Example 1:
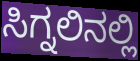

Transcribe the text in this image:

ಸಿಗ್ನಲಿನಲ್ಲಿ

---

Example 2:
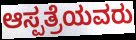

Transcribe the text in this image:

ಆಸ್ಪತ್ರೆಯವರು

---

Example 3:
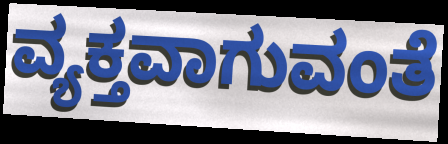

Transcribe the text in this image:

ವ್ಯಕ್ತವಾಗುವಂತೆ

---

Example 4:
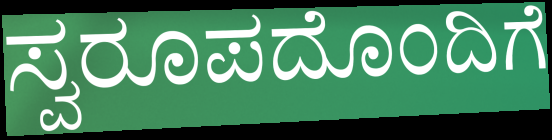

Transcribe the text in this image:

ಸ್ವರೂಪದೊಂದಿಗೆ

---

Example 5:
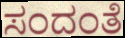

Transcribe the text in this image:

ಸಂದಂತೆ